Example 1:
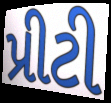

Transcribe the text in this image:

પ્રીટી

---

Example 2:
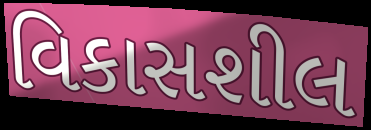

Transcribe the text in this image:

વિકાસશીલ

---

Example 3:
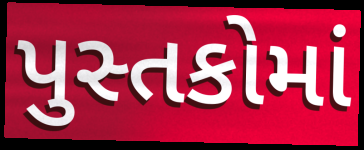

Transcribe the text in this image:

પુસ્તકોમાં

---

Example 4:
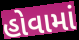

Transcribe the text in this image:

હોવામાં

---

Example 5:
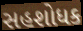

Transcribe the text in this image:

સહશોધક